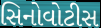
સિનોવોટીસ